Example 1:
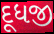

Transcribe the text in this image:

દૂધજી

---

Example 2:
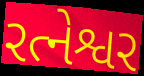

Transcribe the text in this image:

રત્નેશ્વર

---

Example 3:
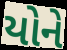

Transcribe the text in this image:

યોને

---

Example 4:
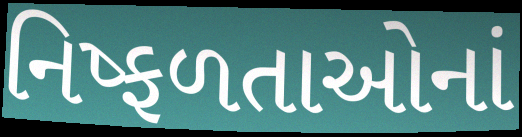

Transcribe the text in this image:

નિષ્ફળતાઓનાં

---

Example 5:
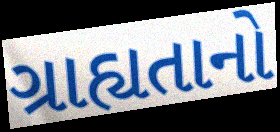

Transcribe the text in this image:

ગ્રાહ્યતાનો